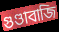
গুণ্ডাবাজি